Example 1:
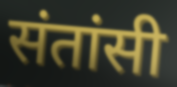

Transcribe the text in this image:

संतांसी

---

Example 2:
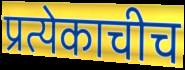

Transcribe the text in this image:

प्रत्येकाचीच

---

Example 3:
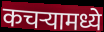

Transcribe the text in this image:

कचऱ्यामध्ये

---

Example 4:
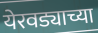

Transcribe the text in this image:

येरवड्याच्या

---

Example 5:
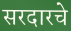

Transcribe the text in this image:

सरदारचे